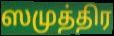
ஸமுத்திர